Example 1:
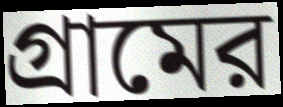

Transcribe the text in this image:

গ্রামের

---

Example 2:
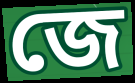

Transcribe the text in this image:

জে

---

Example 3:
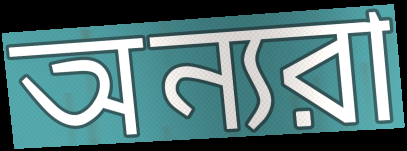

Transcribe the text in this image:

অন্যরা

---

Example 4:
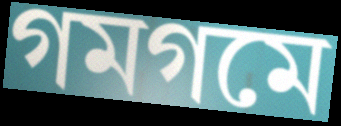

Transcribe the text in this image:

গমগমে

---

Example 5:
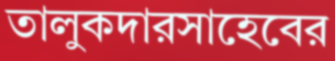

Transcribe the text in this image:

তালুকদারসাহেবের